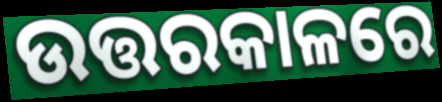
ଉତ୍ତରକାଳରେ